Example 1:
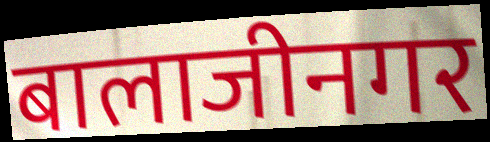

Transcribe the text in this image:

बालाजीनगर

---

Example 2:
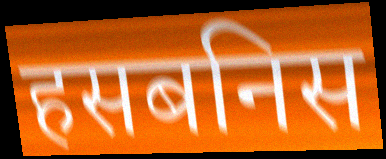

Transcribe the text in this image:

हसबनिस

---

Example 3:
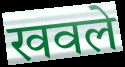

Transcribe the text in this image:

खवले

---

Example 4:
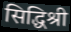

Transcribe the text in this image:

सिद्धिश्री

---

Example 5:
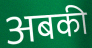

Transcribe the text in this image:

अबकी